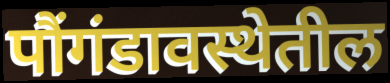
पौंगंडावस्थेतील